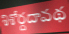
శిశోర్దదావథ